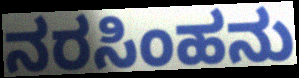
ನರಸಿಂಹನು